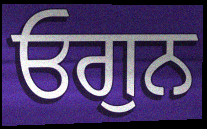
ਓਗੁਨ